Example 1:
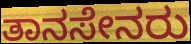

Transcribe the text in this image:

ತಾನಸೇನರು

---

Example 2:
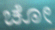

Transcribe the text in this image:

ಚೋ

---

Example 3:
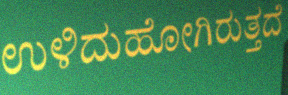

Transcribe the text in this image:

ಉಳಿದುಹೋಗಿರುತ್ತದೆ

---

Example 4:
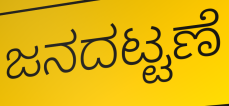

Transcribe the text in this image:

ಜನದಟ್ಟಣೆ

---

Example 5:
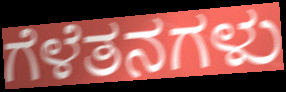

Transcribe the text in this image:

ಗೆಳೆತನಗಳು